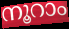
നൂറാം